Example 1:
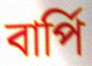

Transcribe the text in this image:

বার্পি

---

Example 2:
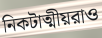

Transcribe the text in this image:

নিকটাত্মীয়রাও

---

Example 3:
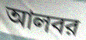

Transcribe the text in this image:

আলবর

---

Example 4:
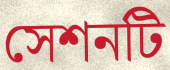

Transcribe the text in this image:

সেশনটি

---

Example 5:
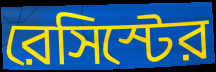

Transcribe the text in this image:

রেসিস্টের